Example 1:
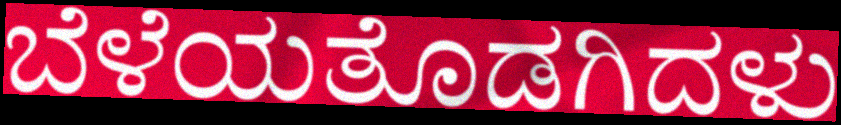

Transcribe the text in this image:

ಬೆಳೆಯತೊಡಗಿದಳು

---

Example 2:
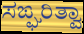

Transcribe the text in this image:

ಸಙ್ಘರಿತ್ವಾ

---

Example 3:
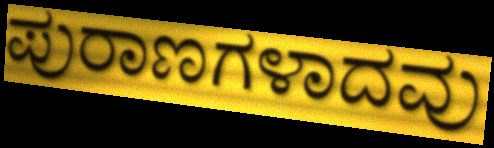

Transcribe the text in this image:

ಪುರಾಣಗಳಾದವು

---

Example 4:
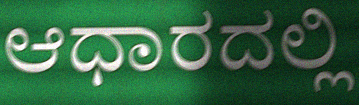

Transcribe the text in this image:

ಆಧಾರದಲ್ಲಿ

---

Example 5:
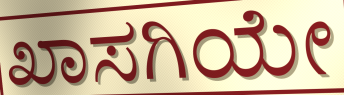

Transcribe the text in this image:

ಖಾಸಗಿಯೇ